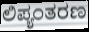
ಲಿಪ್ಯಂತರಣ